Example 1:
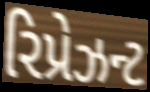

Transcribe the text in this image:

રિપ્રેઝન્ટ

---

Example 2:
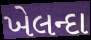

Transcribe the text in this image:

ખેલન્દા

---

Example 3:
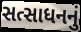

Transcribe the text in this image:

સત્સાધનનું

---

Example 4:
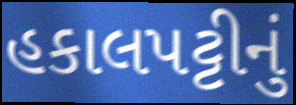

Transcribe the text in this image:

હકાલપટ્ટીનું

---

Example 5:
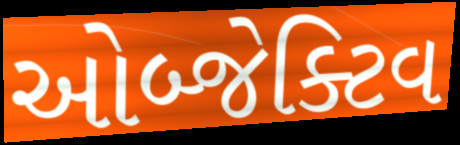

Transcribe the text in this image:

ઓબ્જેક્ટિવ